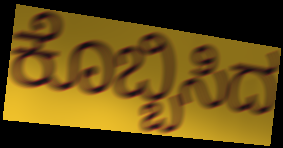
ಕೊಬ್ಬಿಸಿದ